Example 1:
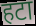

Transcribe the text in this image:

हटा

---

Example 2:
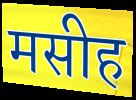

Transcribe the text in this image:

मसीह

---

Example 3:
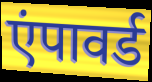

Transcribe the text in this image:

एंपावर्ड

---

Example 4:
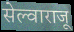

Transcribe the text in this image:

सेल्वाराजू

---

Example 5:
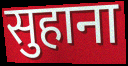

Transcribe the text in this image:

सुहाना